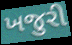
ખજુરી